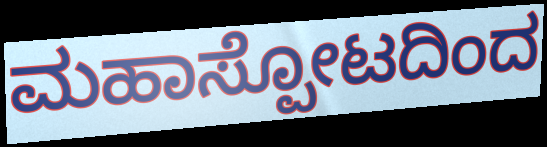
ಮಹಾಸ್ಪೋಟದಿಂದ